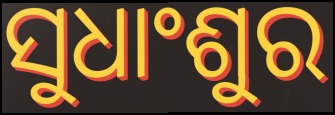
ସୁଧାଂଶୁର